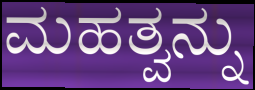
ಮಹತ್ವನ್ನು